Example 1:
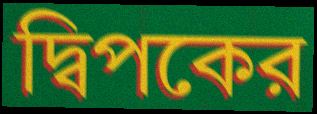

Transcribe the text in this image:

দ্বিপকের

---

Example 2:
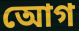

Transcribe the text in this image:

আেগ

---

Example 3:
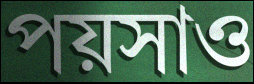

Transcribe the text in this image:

পয়সাও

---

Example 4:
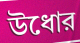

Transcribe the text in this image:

উধোর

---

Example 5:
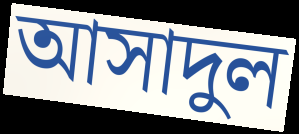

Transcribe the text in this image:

আসাদুল